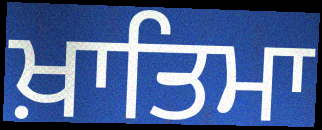
ਖ਼ਾਤਿਮਾ